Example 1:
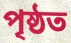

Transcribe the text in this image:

পৃষ্ঠত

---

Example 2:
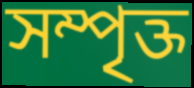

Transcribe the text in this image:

সম্পৃক্ত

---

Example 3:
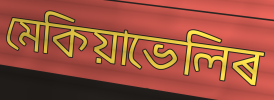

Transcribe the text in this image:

মেকিয়াভেলিৰ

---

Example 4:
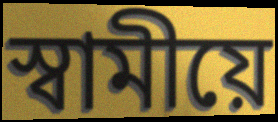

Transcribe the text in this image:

স্বামীয়ে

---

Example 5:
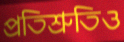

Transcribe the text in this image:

প্ৰতিশ্ৰুতিও